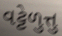
વટ્ટેળુત્તુ